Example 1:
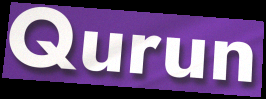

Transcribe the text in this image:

Qurun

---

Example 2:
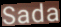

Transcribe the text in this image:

Sada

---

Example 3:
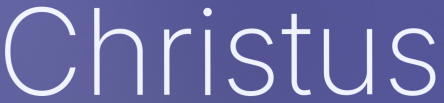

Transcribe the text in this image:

Christus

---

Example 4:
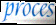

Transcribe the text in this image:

proces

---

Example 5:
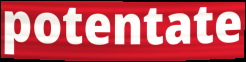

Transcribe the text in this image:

potentate